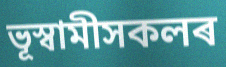
ভূস্বামীসকলৰ